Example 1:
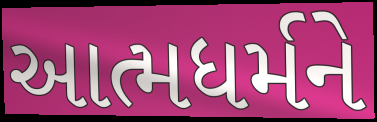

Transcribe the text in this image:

આત્મધર્મને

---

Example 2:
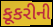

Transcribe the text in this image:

કૂકરીની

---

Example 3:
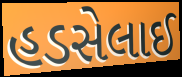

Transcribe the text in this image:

હડસેલાઈ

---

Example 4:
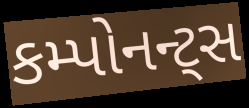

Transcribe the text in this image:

કમ્પોનન્ટ્સ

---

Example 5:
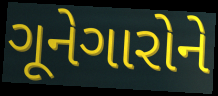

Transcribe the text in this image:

ગૂનેગારોને